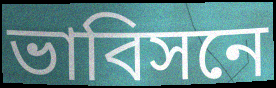
ভাবিসনে